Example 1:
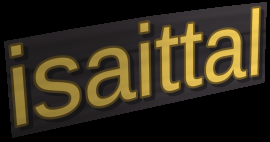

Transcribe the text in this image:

isaittal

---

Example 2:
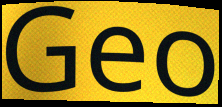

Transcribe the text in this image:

Geo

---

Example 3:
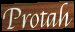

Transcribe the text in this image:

Protah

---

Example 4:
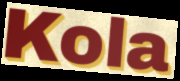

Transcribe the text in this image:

Kola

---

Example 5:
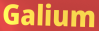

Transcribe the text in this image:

Galium